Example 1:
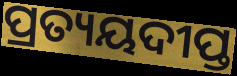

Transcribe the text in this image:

ପ୍ରତ୍ୟୟଦୀପ୍ତ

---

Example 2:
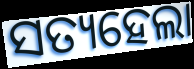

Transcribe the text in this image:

ସତ୍ୟହେଲା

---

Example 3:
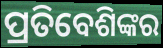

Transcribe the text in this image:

ପ୍ରତିବେଶିଙ୍କର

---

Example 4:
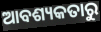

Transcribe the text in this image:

ଆବଶ୍ୟକତାରୁ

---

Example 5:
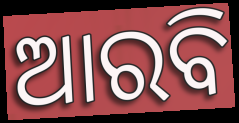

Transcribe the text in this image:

ଆରବି